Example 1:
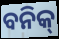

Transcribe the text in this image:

ବନିକ୍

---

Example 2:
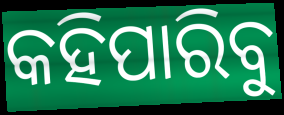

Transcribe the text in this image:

କହିପାରିବୁ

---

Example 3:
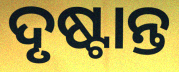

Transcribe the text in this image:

ଦୃଷ୍ଟାନ୍ତ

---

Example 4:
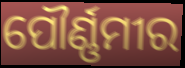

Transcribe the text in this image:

ପୌର୍ଣ୍ଣମୀର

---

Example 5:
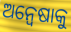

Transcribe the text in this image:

ଅନ୍ୱେଷାକୁ